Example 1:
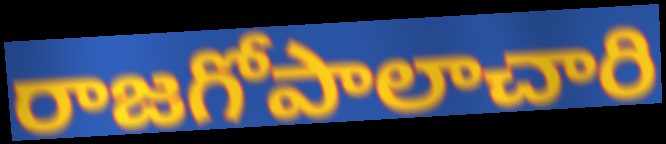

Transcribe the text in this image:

రాజగోపాలాచారి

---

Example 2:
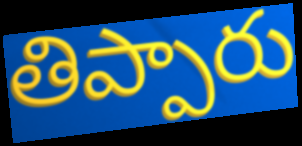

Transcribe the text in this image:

తిప్పారు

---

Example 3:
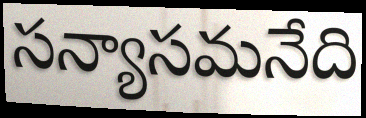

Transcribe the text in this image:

సన్యాసమనేది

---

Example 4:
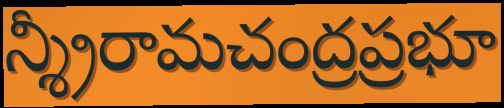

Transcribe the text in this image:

న్శ్రీరామచంద్రప్రభూ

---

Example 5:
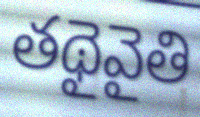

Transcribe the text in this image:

తథైవైతి